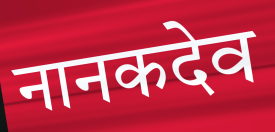
नानकदेव